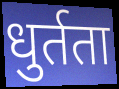
धुर्तता